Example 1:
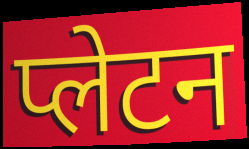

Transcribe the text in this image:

प्लेटन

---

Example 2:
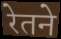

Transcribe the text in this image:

रेतने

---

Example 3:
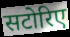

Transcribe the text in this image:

सटोरिए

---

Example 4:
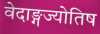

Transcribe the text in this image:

वेदाङ्गज्योतिष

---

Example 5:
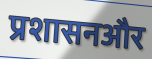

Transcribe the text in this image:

प्रशासनऔर